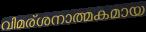
വിമര്ശനാത്മകമായ